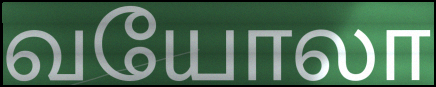
வயோலா